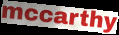
mccarthy